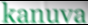
kanuva